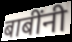
बाबींनी